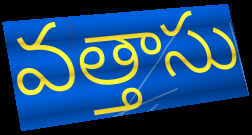
వత్తాసు